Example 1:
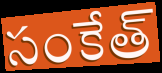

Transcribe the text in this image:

సంకేత్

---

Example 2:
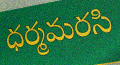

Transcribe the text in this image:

ధర్మమరసి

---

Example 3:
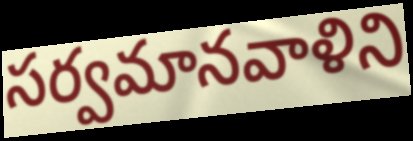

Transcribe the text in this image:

సర్వమానవాళిని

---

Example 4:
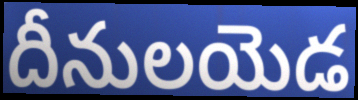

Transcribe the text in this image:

దీనులయెడ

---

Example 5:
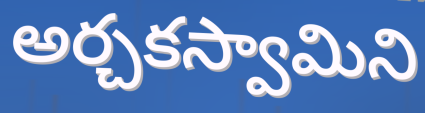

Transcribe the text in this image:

అర్చకస్వామిని